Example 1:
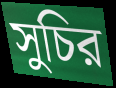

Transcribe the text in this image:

সুচির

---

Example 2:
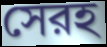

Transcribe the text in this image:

সেরহ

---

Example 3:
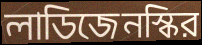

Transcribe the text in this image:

লাডিজেনস্কির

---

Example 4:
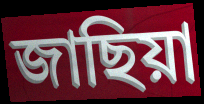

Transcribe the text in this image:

জাছিয়া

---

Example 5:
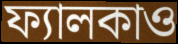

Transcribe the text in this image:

ফ্যালকাও